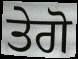
ਤੇਗੋ